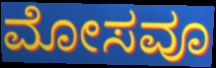
ಮೋಸವೂ